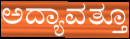
ಅದ್ಯಾವತ್ತೂ